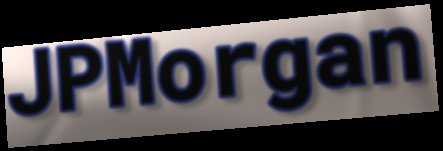
JPMorgan